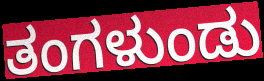
ತಂಗಳುಂಡು